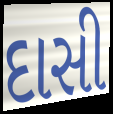
દાસી